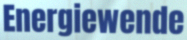
Energiewende